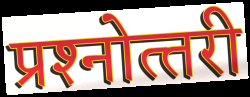
प्रश्‍नोत्‍तरी